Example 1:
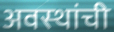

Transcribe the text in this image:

अवस्थांची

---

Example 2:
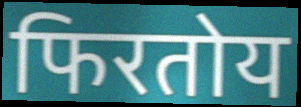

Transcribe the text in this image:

फिरतोय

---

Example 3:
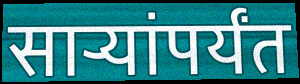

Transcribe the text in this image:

साऱ्यांपर्यंत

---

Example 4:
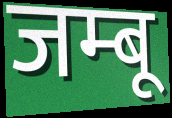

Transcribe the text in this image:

जम्बू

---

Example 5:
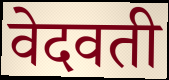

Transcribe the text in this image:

वेदवती